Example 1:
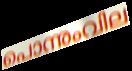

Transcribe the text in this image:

പൊന്നുംവില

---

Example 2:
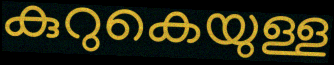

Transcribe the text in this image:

കുറുകെയുള്ള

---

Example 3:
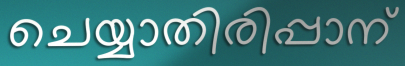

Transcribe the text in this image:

ചെയ്യാതിരിപ്പാന്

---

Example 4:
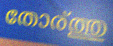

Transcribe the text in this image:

തോര്ത്തു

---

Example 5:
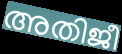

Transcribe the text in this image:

അതിജീ